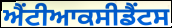
ਐਂਟੀਆਕਸੀਡੈਂਟਸ